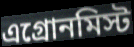
এগ্রোনমিস্ট